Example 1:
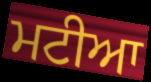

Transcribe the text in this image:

ਮਟੀਆ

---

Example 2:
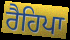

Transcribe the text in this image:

ਰੈਹਿਪਾ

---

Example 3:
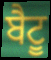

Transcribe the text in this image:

ਬੈਟੂ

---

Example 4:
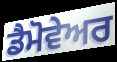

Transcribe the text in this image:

ਡੈਮੋਵੇਅਰ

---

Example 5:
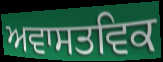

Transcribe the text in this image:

ਅਵਾਸਤਵਿਕ